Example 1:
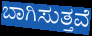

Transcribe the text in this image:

ಬಾಗಿಸುತ್ತವೆ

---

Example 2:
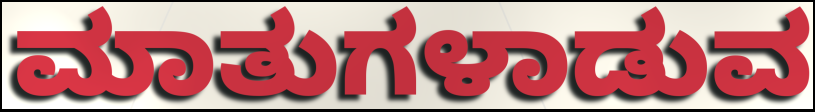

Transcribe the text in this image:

ಮಾತುಗಳಾಡುವ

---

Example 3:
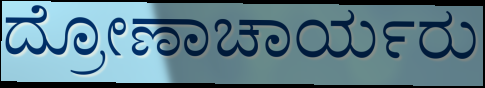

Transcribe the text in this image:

ದ್ರೋಣಾಚಾರ್ಯರು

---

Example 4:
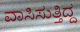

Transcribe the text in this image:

ವಾಸಿಸುತ್ತಿದ್ದ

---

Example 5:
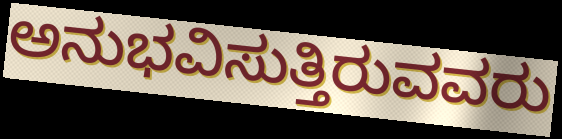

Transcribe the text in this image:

ಅನುಭವಿಸುತ್ತಿರುವವರು